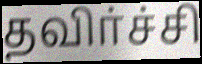
தவிர்ச்சி